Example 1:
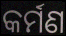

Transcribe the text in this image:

କର୍ମଣ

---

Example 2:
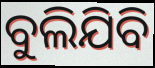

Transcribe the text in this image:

ବୁଲିଯିବି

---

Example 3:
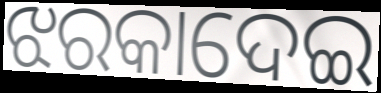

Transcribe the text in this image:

ଝରକାଦେଇ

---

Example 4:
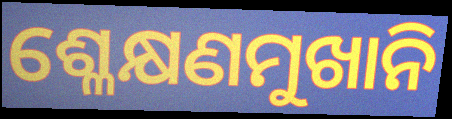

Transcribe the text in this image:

ଶ୍ଳେକ୍ଷଣମୁଖାନି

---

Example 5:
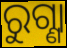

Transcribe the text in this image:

ରୁଗ୍ଣା